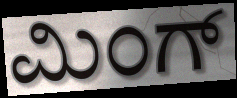
ಮಿಂಗ್